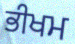
ਭੀਖਮ